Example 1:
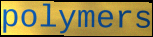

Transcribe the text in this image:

polymers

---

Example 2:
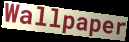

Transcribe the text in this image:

Wallpaper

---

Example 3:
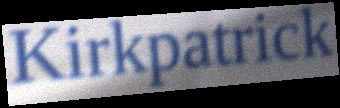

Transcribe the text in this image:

Kirkpatrick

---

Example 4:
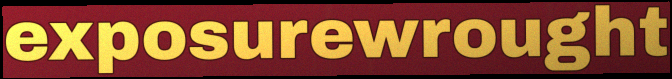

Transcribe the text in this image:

exposurewrought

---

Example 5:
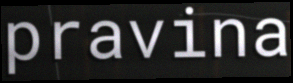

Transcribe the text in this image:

pravina